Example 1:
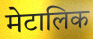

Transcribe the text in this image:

मेटालिक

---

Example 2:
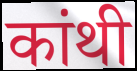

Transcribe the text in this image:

कांथी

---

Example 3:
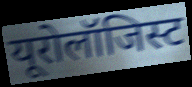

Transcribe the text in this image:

यूरोलॉजिस्ट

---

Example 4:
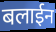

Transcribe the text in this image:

बलाईन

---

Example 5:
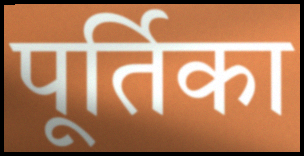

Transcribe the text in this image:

पूर्तिका